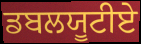
ਡਬਲਯੂਟੀਏ